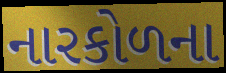
નારકોળના